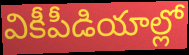
వికీపీడియాల్లో